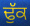
ਢੁੱਕ